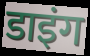
डाइंग